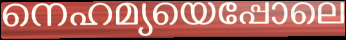
നെഹമ്യയെപ്പോലെ